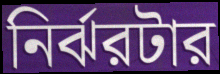
নির্ঝরটার